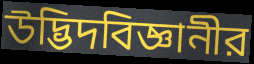
উদ্ভিদবিজ্ঞানীর